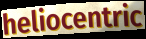
heliocentric